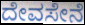
ದೇವಸೇನೆ